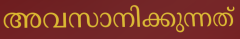
അവസാനിക്കുന്നത്